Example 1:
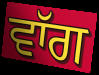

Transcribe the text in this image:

ਵਾੱਗ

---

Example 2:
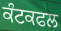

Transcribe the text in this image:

ਕੰਟਕਫਲ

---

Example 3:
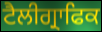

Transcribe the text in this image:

ਟੈਲੀਗ੍ਰਾਫਿਕ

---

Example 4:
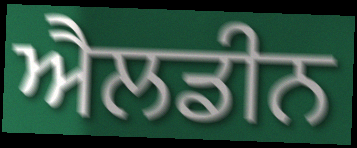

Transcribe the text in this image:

ਐਲਡੀਨ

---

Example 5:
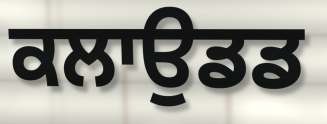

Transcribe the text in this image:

ਕਲਾਉਡਡ